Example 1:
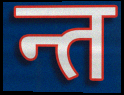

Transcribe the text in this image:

न्त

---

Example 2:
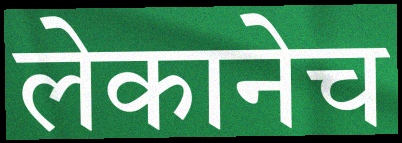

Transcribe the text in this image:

लेकानेच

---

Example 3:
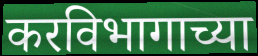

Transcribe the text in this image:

करविभागाच्या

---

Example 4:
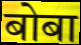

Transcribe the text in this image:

बोबा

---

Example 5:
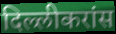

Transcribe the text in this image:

दिल्लीकरांस